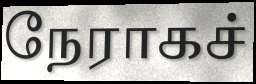
நேராகச்